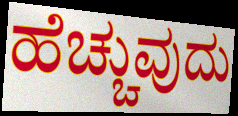
ಹೆಚ್ಚುವುದು